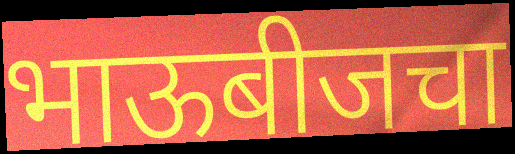
भाऊबीजचा